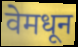
वेमधून